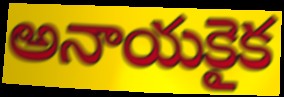
అనాయకైక